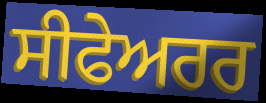
ਸੀਫੇਅਰਰ